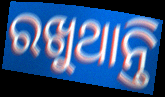
ରଖୁଥାନ୍ତି